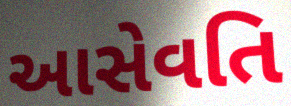
આસેવતિ